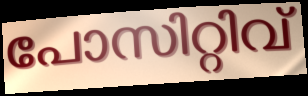
പോസിറ്റിവ്